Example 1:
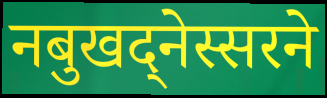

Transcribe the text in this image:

नबुखद्नेस्सरने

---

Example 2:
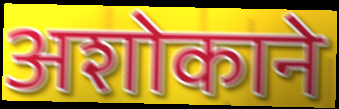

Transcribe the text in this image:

अशोकाने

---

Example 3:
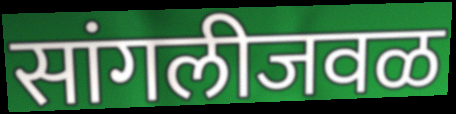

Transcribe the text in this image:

सांगलीजवळ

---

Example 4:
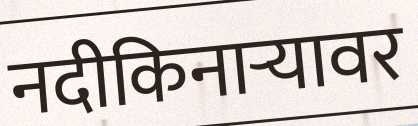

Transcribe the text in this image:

नदीकिनाऱ्यावर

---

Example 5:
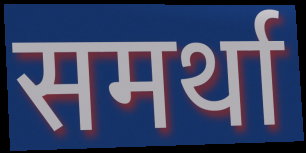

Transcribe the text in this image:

समर्था